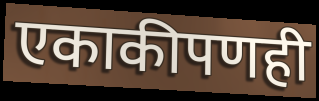
एकाकीपणही